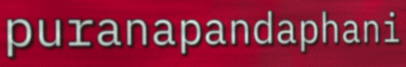
puranapandaphani